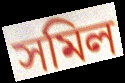
সমিল